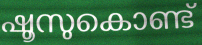
ഷൂസുകൊണ്ട്